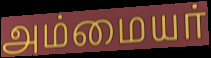
அம்மையர்